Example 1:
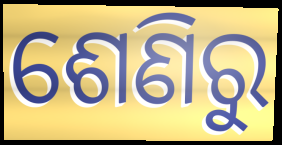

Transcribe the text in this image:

ଶେଣିରୁ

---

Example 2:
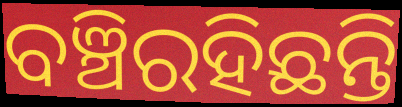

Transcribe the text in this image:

ବଞ୍ଚିରହିଛନ୍ତି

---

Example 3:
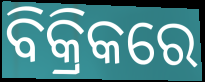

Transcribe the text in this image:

ବିକ୍ରିକରେ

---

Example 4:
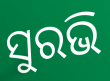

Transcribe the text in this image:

ସୁରଭି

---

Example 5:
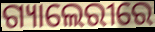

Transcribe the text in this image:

ଗ୍ୟାଲେରୀରେ